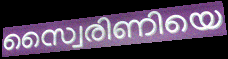
സ്വൈരിണിയെ